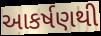
આકર્ષણથી